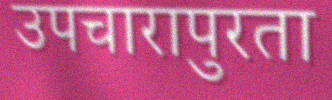
उपचारापुरता